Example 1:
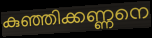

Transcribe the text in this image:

കുഞ്ഞിക്കണ്ണനെ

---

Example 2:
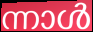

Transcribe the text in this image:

ന്നാൾ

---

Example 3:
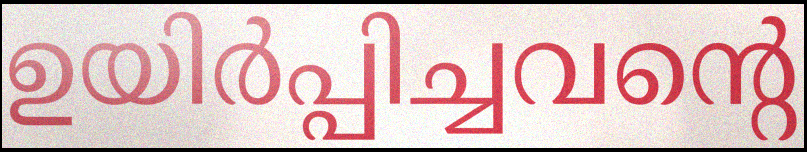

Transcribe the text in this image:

ഉയിർപ്പിച്ചവന്റെ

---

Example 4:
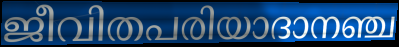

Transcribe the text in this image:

ജീവിതപരിയാദാനഞ്ച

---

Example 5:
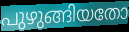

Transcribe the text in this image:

പുഴുങ്ങിയതോ